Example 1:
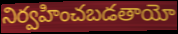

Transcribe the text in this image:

నిర్వహించబడతాయో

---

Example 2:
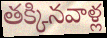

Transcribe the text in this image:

తక్కినవాళ్ల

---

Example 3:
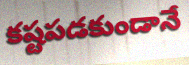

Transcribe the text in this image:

కష్టపడకుండానే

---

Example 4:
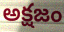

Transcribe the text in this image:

అక్షజం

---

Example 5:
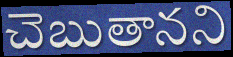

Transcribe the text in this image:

చెబుతానని